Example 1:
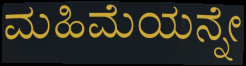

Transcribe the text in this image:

ಮಹಿಮೆಯನ್ನೇ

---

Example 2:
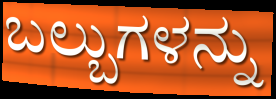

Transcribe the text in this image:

ಬಲ್ಬುಗಳನ್ನು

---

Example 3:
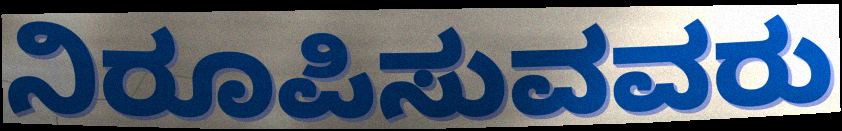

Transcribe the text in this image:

ನಿರೂಪಿಸುವವರು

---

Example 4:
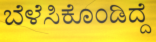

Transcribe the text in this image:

ಬೆಳೆಸಿಕೊಂಡಿದ್ದೆ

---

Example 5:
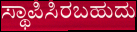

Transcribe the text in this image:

ಸ್ಥಾಪಿಸಿರಬಹುದು